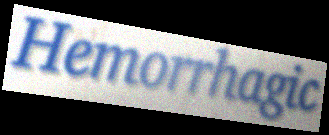
Hemorrhagic